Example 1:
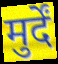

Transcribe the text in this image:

मुर्दें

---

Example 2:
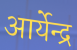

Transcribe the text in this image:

आर्येन्द्र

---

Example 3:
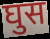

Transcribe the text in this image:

घुस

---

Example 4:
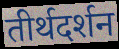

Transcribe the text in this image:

तीर्थदर्शन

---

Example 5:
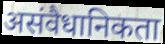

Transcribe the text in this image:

असंवैधानिकता